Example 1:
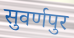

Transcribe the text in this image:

सुवर्णपुर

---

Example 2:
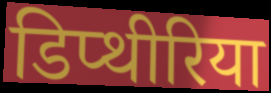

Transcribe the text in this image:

डिप्थीरिया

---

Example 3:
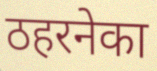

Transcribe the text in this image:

ठहरनेका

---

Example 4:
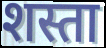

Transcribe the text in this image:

शस्ता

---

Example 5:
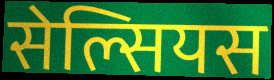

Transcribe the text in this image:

सेल्सियस